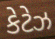
કેટેઝ